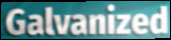
Galvanized